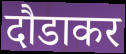
दौडाकर